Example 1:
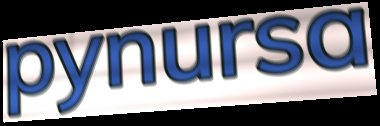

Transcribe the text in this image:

pynursa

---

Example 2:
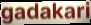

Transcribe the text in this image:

gadakari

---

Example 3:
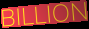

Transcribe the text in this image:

BILLION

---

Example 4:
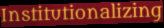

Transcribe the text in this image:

Institutionalizing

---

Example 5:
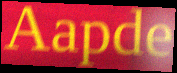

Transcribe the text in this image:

Aapde